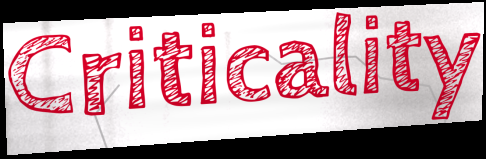
Criticality